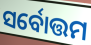
ସର୍ବୋତ୍ତମ